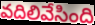
వదిలివేసింది